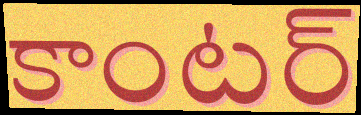
కాంటర్